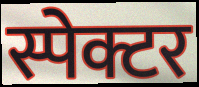
स्पेक्टर